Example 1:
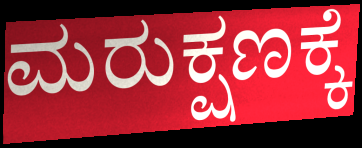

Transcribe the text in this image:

ಮರುಕ್ಷಣಕ್ಕೆ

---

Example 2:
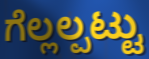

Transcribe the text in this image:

ಗೆಲ್ಲಲ್ಪಟ್ಟು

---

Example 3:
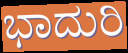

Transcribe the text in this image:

ಭಾದುರಿ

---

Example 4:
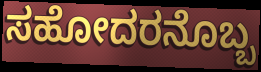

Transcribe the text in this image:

ಸಹೋದರನೊಬ್ಬ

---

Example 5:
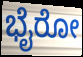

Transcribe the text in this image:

ಭೈರೋ